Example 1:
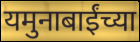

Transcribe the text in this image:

यमुनाबाईंच्या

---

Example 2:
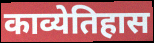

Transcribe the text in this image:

काव्येतिहास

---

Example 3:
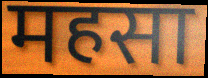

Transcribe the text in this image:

महसा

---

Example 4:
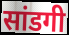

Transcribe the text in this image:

सांडगी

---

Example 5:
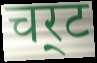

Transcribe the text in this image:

चर्ट